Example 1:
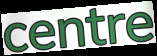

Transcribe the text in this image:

centre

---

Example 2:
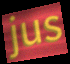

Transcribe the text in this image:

jus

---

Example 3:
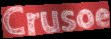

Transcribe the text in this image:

Crusoe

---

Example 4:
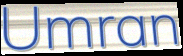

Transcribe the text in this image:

Umran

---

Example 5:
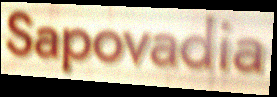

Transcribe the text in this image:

Sapovadia